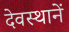
देवस्थानें